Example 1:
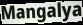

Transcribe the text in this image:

Mangalya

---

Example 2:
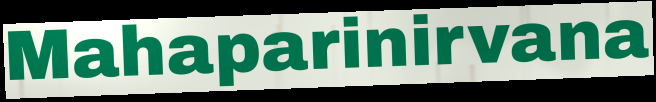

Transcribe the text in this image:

Mahaparinirvana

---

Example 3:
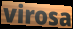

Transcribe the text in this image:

virosa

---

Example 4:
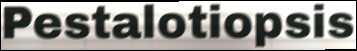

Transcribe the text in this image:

Pestalotiopsis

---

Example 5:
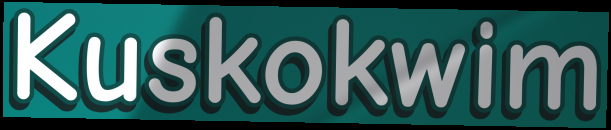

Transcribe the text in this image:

Kuskokwim